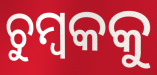
ଚୁମ୍ୱକକୁ